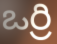
ఒర్రి